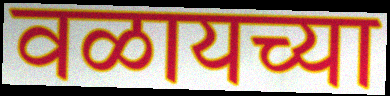
वळायच्या